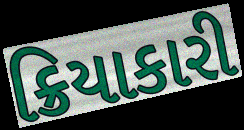
ક્રિયાકારી